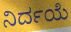
ನಿರ್ದಯೆ